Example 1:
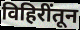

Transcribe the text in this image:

विहिरींतून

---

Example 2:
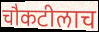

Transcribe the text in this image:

चौकटीलाच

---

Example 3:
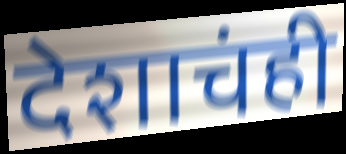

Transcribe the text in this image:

देशाचंही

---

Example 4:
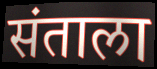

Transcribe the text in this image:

संताला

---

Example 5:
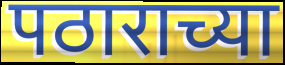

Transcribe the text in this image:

पठाराच्या